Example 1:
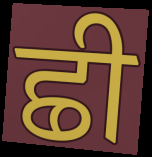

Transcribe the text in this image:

ਛੀ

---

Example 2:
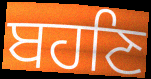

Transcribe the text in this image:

ਬਹਣਿ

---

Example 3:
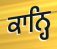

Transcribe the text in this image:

ਕਾਨ੍ਹਿ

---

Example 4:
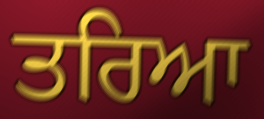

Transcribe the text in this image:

ਤਰਿਆ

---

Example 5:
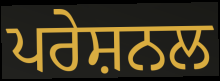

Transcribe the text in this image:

ਪਰੇਸ਼ਨਲ